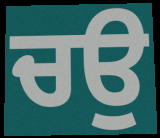
ਚਉ